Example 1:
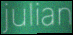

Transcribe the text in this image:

julian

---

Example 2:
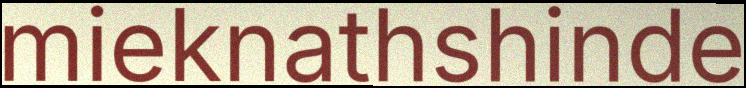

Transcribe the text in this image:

mieknathshinde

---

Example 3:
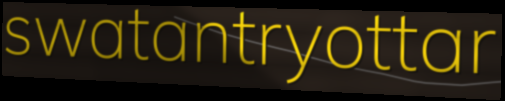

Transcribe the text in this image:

swatantryottar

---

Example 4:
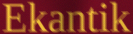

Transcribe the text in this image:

Ekantik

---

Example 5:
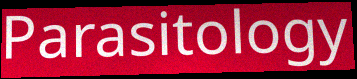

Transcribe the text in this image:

Parasitology